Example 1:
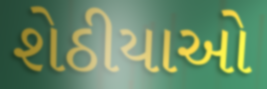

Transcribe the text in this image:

શેઠીયાઓ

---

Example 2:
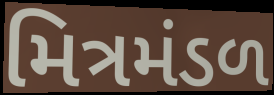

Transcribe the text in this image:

મિત્રમંડળ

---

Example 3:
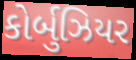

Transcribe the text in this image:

કોર્બુઝિયર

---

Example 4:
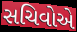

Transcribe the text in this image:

સચિવોએ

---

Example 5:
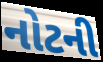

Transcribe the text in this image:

નોટની